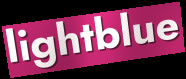
lightblue